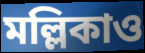
মল্লিকাও